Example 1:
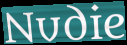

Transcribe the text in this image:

Nudie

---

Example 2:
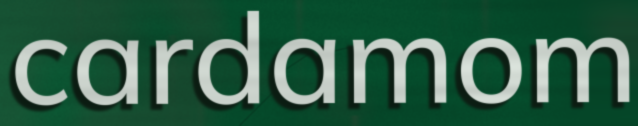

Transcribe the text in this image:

cardamom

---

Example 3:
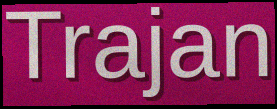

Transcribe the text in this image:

Trajan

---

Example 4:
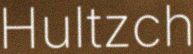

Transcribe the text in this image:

Hultzch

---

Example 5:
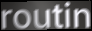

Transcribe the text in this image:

routin